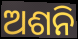
ଅଶନି